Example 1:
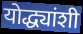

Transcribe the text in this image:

योद्ध्यांशी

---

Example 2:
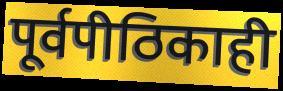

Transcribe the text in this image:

पूर्वपीठिकाही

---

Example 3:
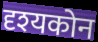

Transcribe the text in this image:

दृश्‍यकोन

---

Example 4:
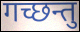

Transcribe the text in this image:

गच्छन्तु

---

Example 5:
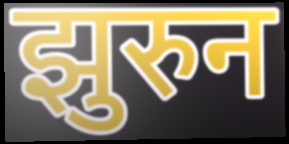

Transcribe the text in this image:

झुरुन